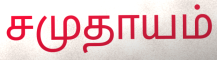
சமுதாயம்